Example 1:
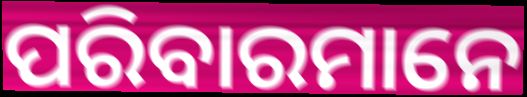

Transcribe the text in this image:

ପରିବାରମାନେ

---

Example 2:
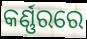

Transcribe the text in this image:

କର୍ଣ୍ଣରରେ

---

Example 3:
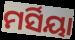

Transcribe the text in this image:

ମର୍ସିୟା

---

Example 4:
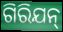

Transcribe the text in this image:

ଗିରିଯନ୍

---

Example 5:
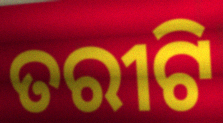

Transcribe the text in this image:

ତରୀଟି